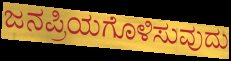
ಜನಪ್ರಿಯಗೊಳಿಸುವುದು